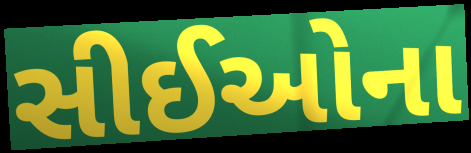
સીઈઓના